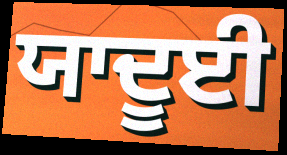
ਯਾਦੂਈ